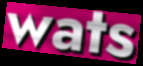
wats